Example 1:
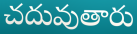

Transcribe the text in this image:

చదువుతారు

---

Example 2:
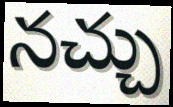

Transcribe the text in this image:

నచ్చు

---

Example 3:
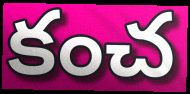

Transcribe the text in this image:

కంచ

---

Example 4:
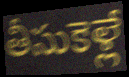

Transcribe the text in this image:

తీసుకెళ్లే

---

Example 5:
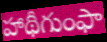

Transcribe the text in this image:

హాథీగుంఫా